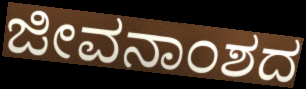
ಜೀವನಾಂಶದ